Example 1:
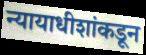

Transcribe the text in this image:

न्यायाधीशांकडून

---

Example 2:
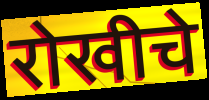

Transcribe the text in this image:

रोखीचे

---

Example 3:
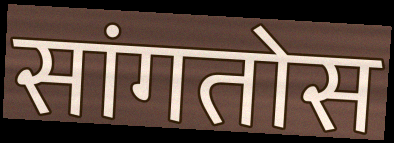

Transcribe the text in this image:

सांगतोस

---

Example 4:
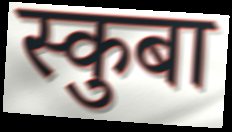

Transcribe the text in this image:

स्कुबा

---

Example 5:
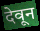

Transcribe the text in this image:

देवून